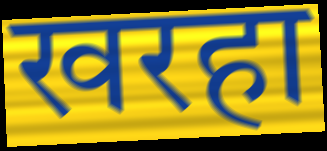
खरहा